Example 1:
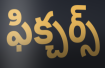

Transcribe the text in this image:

ఫిక్చర్స్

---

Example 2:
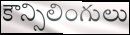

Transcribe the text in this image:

కౌన్సిలింగులు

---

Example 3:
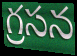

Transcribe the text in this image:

గ్రసన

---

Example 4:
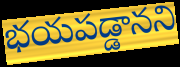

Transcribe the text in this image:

భయపడ్డానని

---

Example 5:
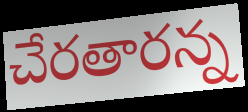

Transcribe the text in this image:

చేరతారన్న